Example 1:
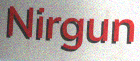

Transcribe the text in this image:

Nirgun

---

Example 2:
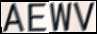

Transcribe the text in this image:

AEWV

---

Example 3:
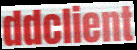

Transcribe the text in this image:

ddclient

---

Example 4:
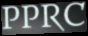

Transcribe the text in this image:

PPRC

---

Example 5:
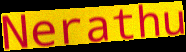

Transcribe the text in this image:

Nerathu